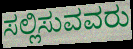
ಸಲ್ಲಿಸುವವರು